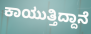
ಕಾಯುತ್ತಿದ್ದಾನೆ